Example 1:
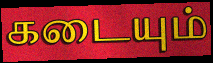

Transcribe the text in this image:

கடையும்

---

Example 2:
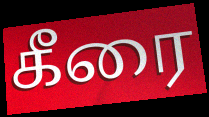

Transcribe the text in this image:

கீரை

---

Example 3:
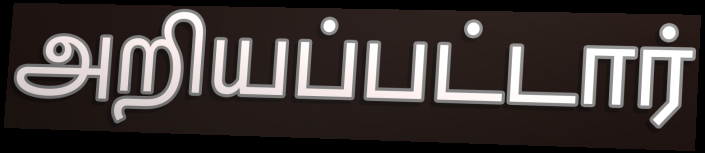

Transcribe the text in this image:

அறியப்பட்டார்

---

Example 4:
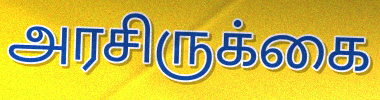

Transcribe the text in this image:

அரசிருக்கை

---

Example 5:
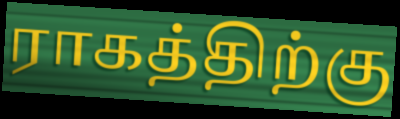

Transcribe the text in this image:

ராகத்திற்கு